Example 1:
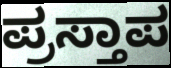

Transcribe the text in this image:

ಪ್ರಸ್ತಾಪ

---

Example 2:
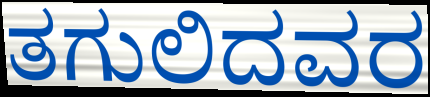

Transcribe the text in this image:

ತಗುಲಿದವರ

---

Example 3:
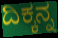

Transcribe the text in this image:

ದಿಕ್ಕನ್ನ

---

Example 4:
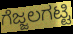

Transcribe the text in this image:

ಗೆಜ್ಜಲಗಟ್ಟಿ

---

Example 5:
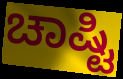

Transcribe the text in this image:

ಚಾಷ್ಟಿ